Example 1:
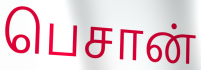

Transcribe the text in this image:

பெசான்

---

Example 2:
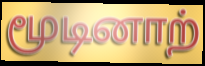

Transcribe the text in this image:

மூடினாற்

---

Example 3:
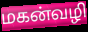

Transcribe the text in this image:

மகன்வழி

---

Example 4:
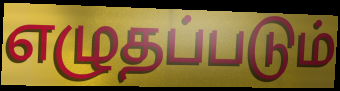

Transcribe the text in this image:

எழுதப்படும்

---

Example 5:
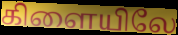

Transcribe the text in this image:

கிளையிலே